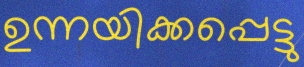
ഉന്നയിക്കപ്പെട്ടു